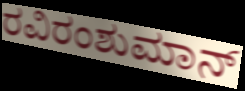
ರವಿರಂಶುಮಾನ್